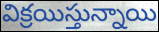
విక్రయిస్తున్నాయి